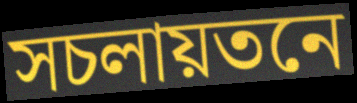
সচলায়তনে